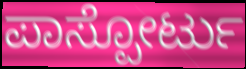
ಪಾಸ್ಪೋರ್ಟು